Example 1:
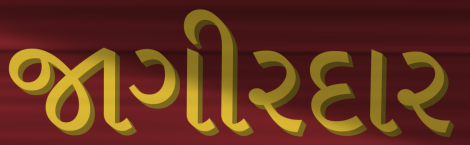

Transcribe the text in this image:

જાગીરદાર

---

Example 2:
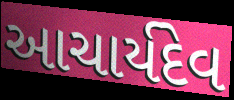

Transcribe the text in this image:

આચાર્યદેવ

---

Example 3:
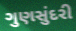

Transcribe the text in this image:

ગુણસુંદરી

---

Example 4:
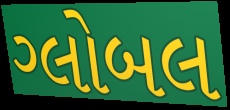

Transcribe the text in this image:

ગ્લોબલ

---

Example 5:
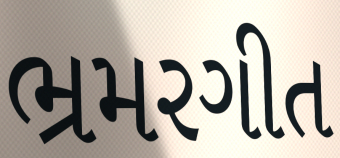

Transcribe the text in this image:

ભ્રમરગીત